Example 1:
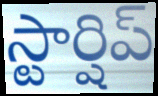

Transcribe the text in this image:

స్టార్షిప్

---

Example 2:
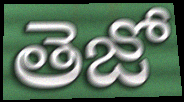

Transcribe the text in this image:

తెజో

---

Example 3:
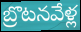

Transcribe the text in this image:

బ్రొటనవేళ్ల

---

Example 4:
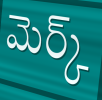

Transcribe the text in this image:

మెర్క్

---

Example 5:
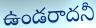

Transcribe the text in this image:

ఉండరాదనీ